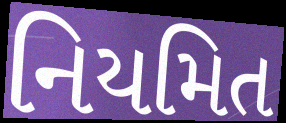
નિયમિત